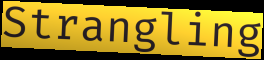
Strangling